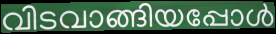
വിടവാങ്ങിയപ്പോൾ